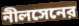
নীলসেনের